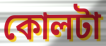
কোলটা